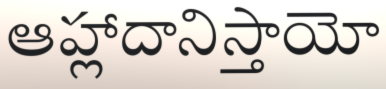
ఆహ్లాదానిస్తాయో